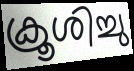
ക്രൂശിച്ചു